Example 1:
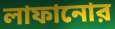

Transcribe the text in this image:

লাফানোর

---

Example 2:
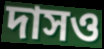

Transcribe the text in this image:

দাসও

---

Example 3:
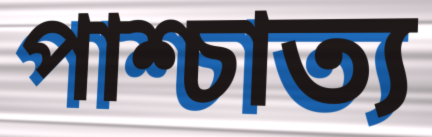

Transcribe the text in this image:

পাশ্চাত্য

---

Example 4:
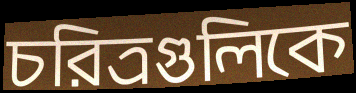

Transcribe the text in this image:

চরিত্রগুলিকে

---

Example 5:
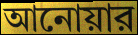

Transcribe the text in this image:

আনোয়ার